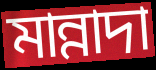
মান্নাদা